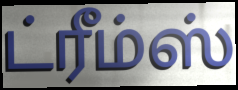
ட்ரீம்ஸ்